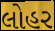
લોહર